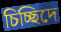
চিচ্ছিদে